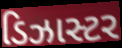
ડિઝાસ્ટર